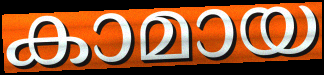
കാമായ